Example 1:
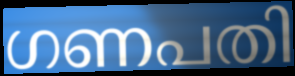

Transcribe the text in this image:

ഗണപതി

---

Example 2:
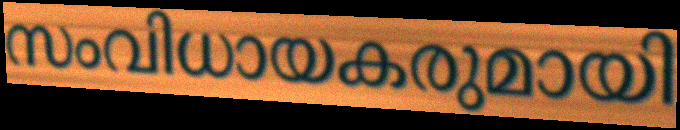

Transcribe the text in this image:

സംവിധായകരുമായി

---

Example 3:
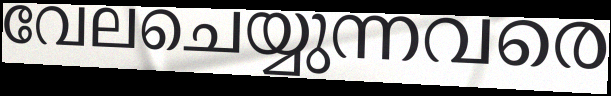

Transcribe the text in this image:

വേലചെയ്യുന്നവരെ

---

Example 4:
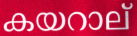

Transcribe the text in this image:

കയറാല്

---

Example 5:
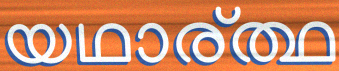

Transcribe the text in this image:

യഥാര്ത്ഥ